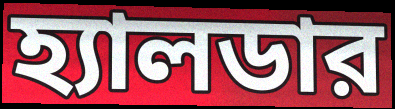
হ্যালডার